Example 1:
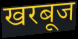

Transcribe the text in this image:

खरबूज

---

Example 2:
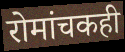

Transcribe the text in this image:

रोमांचकही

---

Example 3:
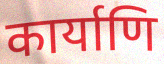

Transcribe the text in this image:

कार्याणि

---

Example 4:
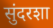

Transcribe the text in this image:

सुंदरशा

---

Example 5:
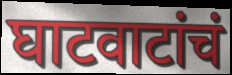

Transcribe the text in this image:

घाटवाटांचं